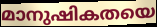
മാനുഷികതയെ